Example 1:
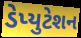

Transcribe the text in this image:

ડેપ્યુટેશન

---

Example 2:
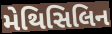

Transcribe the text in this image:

મેથિસિલિન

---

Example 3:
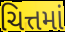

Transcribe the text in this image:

ચિત્તમાં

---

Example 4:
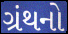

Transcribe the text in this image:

ગ્રંથનો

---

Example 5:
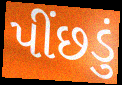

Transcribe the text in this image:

પીંછડું